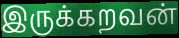
இருக்கறவன்